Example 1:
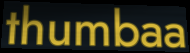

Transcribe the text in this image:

thumbaa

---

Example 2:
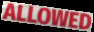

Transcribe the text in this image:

ALLOWED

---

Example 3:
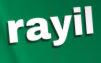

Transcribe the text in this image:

rayil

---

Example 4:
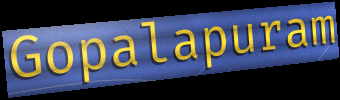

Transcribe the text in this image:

Gopalapuram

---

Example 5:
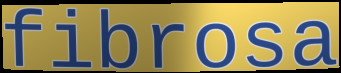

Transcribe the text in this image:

fibrosa